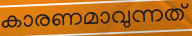
കാരണമാവുന്നത്